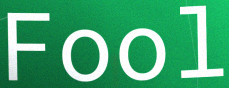
Fool